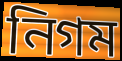
নিগম